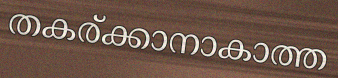
തകര്ക്കാനാകാത്ത